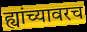
ह्यांच्यावरच